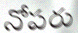
నోపరు